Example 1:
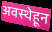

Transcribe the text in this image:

अवस्थेहून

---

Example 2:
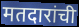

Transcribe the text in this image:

मतदारांची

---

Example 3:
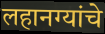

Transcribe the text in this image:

लहानग्यांचे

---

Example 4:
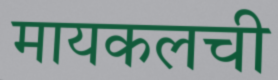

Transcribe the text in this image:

मायकलची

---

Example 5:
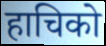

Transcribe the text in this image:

हाचिको